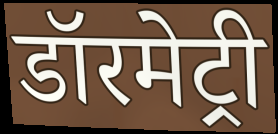
डॉरमेट्री